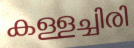
കള്ളച്ചിരി